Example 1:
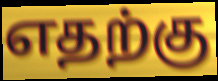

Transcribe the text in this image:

எதற்கு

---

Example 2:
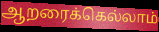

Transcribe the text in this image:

ஆறரைக்கெல்லாம்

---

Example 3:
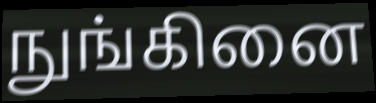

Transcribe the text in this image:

நுங்கினை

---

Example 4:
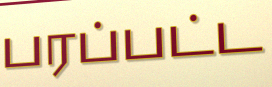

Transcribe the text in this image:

பரப்பட்ட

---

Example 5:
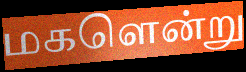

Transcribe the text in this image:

மகளென்று